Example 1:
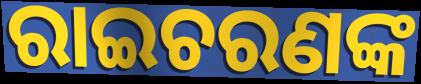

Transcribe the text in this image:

ରାଇଚରଣଙ୍କ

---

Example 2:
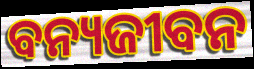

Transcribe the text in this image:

ବନ୍ୟଜୀବନ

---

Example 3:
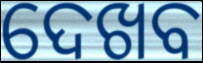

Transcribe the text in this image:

ଦେଖବ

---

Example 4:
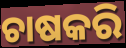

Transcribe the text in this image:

ଚାଷକରି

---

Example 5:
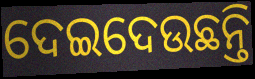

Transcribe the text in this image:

ଦେଇଦେଉଛନ୍ତି